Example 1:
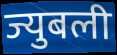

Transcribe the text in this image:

ज्युबली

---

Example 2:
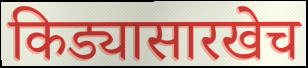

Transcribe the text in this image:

किड्यासारखेच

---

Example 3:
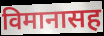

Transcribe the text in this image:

विमानासह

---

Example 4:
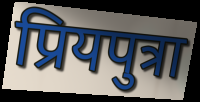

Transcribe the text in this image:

प्रियपुत्रा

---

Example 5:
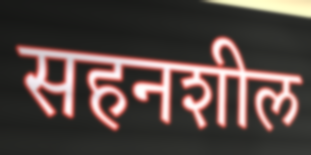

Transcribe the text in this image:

सहनशील